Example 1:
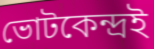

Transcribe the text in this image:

ভোটকেন্দ্রই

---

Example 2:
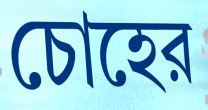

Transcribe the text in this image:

চোহের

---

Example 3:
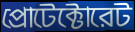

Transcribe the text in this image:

প্রোটেক্টোরেট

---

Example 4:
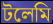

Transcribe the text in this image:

টলেমি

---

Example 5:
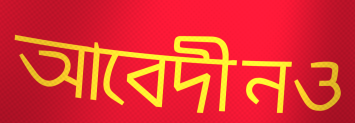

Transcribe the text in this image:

আবেদীনও